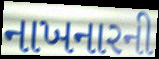
નાખનારની